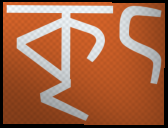
কৃৎ